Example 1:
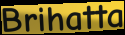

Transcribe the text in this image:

Brihatta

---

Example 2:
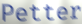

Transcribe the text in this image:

Petter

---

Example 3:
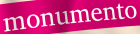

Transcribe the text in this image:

monumento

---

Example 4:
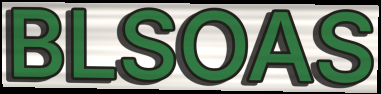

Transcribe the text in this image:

BLSOAS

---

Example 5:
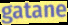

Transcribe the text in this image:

gatane